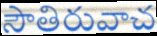
సౌతిరువాచ